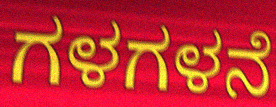
ಗಳಗಳನೆ